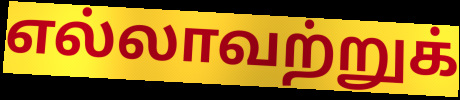
எல்லாவற்றுக்